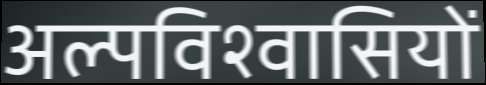
अल्पविश्वासियों